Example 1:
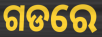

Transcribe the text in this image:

ଗଡରେ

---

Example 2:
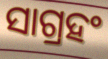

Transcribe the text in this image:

ସାଗ୍ରହଂ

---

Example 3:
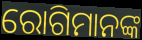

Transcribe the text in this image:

ରୋଗିମାନଙ୍କ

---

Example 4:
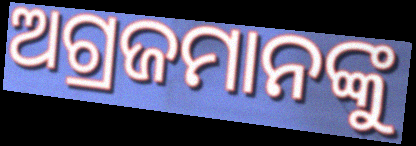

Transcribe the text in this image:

ଅଗ୍ରଜମାନଙ୍କୁ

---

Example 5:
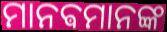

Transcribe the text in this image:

ମାନଵମାନଙ୍କ